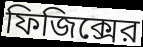
ফিজিক্সের